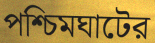
পশ্চিমঘাটের